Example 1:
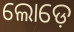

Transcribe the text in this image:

ଲୋଡ଼େ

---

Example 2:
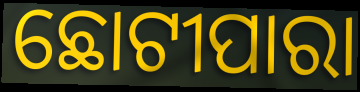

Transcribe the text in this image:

ଛୋଟୀପାରା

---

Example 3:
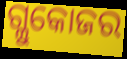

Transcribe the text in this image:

ଗ୍ଲୁକୋଜର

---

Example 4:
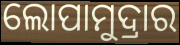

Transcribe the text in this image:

ଲୋପାମୁଦ୍ରାର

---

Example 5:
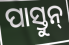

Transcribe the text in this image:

ପାସ୍ତୁନ୍